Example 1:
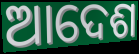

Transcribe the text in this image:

ଆଦେଶ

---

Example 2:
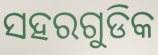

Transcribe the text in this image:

ସହରଗୁଡିକ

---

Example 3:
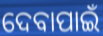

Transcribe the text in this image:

ଦେବାପାଇଁ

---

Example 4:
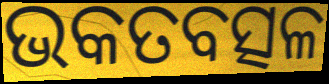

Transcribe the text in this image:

ଭକତବତ୍ସଳ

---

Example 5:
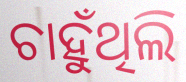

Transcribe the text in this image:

ଚାହୁଁଥିଲି